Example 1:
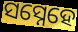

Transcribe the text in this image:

ସସ୍ନେହେ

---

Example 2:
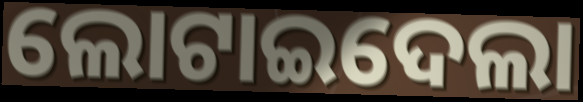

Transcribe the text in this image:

ଲୋଟାଇଦେଲା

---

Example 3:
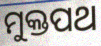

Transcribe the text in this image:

ମୁକ୍ତପଥ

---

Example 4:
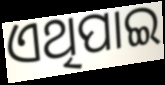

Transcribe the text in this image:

ଏଥିପାଇ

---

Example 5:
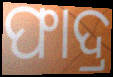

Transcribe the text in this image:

ଫାଦ୍ର